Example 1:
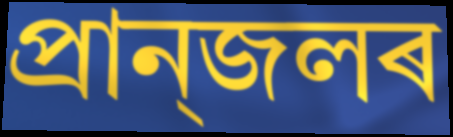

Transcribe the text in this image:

প্ৰান্জলৰ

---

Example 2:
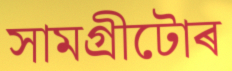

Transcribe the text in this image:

সামগ্ৰীটোৰ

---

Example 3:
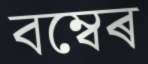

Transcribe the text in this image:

বম্বেৰ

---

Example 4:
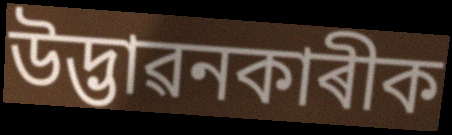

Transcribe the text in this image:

উদ্ভাৱনকাৰীক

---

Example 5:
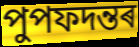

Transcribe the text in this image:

পুপফদন্তৰ